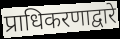
प्राधिकरणाद्वारे